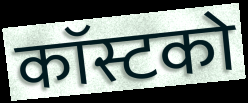
कॉस्टको